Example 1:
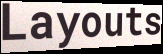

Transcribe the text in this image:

Layouts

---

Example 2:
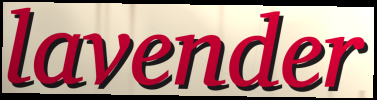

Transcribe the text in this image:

lavender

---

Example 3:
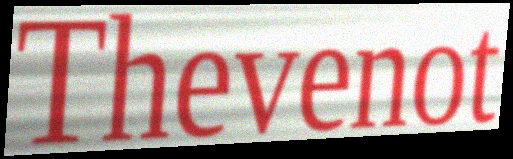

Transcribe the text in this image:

Thevenot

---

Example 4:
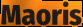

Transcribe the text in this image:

Maoris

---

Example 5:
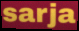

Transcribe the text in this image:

sarja